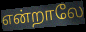
என்றாலே